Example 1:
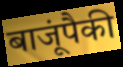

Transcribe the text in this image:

बाजूंपैकी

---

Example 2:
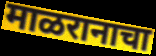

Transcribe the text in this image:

माळरानाचा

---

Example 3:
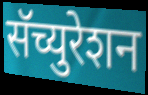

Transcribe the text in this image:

सॅच्युरेशन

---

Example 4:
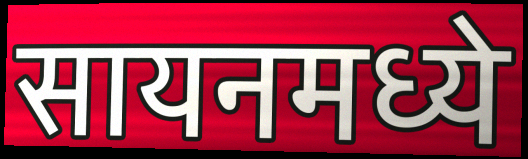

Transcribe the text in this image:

सायनमध्ये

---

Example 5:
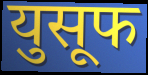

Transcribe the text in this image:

युसूफ